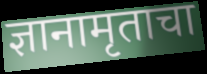
ज्ञानामृताचा